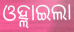
ଓହ୍ଲାଇଲା